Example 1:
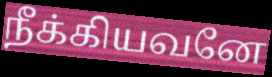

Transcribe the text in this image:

நீக்கியவனே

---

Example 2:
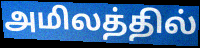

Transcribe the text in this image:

அமிலத்தில்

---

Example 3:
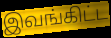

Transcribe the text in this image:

இவங்கிட்ட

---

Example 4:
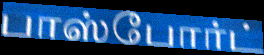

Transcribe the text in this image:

பாஸ்போர்ட்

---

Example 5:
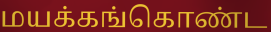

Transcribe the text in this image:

மயக்கங்கொண்ட